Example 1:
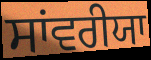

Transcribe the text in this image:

ਸਾਂਵਰੀਯਾ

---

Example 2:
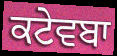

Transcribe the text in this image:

ਕਟੇਵਬਾ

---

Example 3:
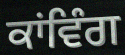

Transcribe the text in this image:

ਕਾਂਵਿੰਗ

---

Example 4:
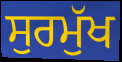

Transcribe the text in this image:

ਸੁਰਮੁੱਖ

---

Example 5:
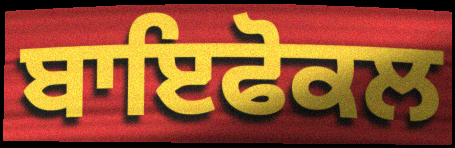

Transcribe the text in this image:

ਬਾਇਫੋਕਲ